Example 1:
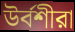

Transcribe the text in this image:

উর্বশীরা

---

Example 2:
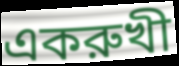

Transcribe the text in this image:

একরুখী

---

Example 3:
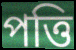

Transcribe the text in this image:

পত্তি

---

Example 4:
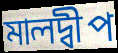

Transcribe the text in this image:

মালদ্বীপ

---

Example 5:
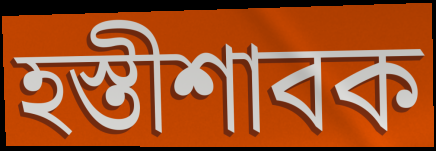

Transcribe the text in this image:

হস্তীশাবক